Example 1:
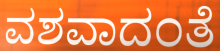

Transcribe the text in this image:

ವಶವಾದಂತೆ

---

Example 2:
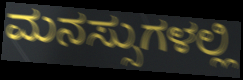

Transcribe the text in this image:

ಮನಸ್ಸುಗಳಲ್ಲಿ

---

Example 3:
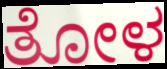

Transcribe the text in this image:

ತೋಳ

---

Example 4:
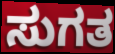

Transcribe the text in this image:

ಸುಗತ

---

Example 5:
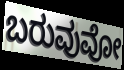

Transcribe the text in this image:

ಬರುವುವೋ